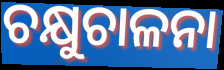
ଚକ୍ଷୁଚାଳନା